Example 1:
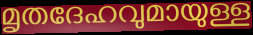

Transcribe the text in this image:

മൃതദേഹവുമായുള്ള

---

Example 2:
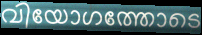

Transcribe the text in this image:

വിയോഗത്തോടെ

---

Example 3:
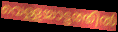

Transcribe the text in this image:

വെള്ളച്ചാട്ടത്തിൽ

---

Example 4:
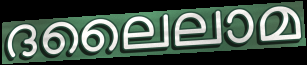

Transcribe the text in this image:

ദലൈലാമ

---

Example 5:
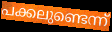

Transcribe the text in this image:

പക്കലുണ്ടെന്ന്